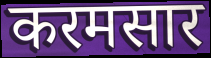
करमसार